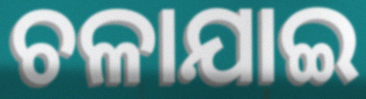
ଚଳାଯାଇ